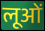
लूओं